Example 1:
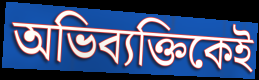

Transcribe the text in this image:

অভিব্যক্তিকেই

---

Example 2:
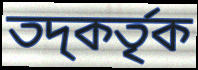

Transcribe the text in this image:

তদ্‌কর্তৃক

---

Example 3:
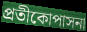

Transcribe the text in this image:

প্রতীকোপাসনা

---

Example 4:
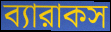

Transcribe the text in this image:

ব্যারাকস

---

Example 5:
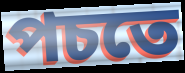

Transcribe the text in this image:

পচতে